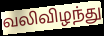
வலிவிழந்து